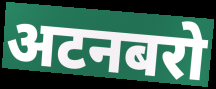
अटनबरो